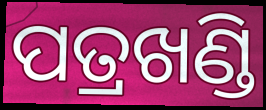
ପତ୍ରଖଣ୍ଡି